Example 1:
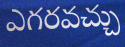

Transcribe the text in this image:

ఎగరవచ్చు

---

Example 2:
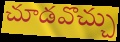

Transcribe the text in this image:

చూడవొచ్చు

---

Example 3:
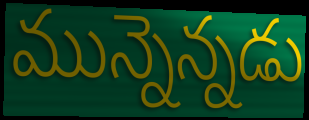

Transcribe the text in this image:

మున్నెన్నడు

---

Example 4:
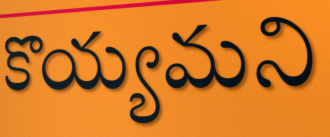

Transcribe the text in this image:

కొయ్యమని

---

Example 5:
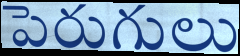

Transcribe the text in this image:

పెరుగులు